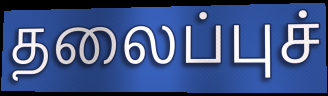
தலைப்புச்